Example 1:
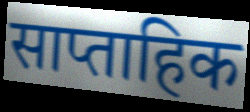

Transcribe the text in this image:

साप्‍ताहिक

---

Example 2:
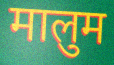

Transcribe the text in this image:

मालुम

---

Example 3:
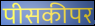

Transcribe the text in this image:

पीसकीपर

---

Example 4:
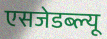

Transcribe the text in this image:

एसजेडब्ल्यू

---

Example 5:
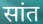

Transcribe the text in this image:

सांत